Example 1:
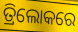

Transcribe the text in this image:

ତ୍ରିଲୋକରେ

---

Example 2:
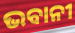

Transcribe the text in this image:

ଭବାନୀ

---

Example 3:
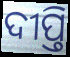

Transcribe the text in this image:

ଦୀପ୍ତି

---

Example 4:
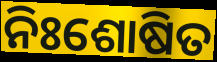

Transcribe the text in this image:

ନିଃଶୋଷିତ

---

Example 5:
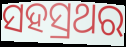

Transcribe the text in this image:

ସହସ୍ରଥର